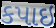
કપાઇ